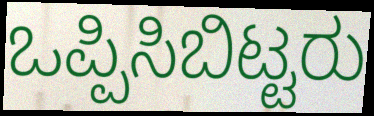
ಒಪ್ಪಿಸಿಬಿಟ್ಟರು